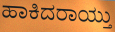
ಹಾಕಿದರಾಯ್ತು